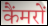
कैंमरों